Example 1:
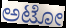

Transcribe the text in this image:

ಅಟೋ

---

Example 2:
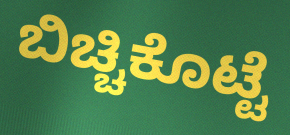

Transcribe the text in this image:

ಬಿಚ್ಚಿಕೊಟ್ಟೆ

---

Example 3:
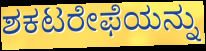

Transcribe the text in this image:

ಶಕಟರೇಫೆಯನ್ನು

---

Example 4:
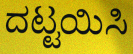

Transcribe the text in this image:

ದಟ್ಟಯಿಸಿ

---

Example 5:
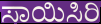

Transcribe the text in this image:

ಸಾಯಿಸಿರಿ